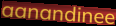
aanandinee